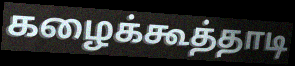
கழைக்கூத்தாடி